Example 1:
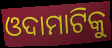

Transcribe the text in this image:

ଓଦାମାଟିକୁ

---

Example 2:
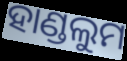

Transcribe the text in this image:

ହାଣ୍ଡଲୁମ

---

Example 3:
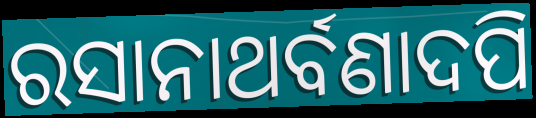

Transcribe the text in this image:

ରସାନାଥର୍ବଣାଦପି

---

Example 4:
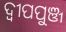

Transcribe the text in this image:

ଦ୍ଵୀପପୁଞ୍ଜ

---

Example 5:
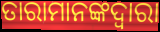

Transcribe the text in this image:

ତାରାମାନଙ୍କଦ୍ୱାରା